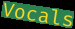
Vocals